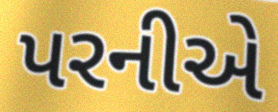
પરનીએ